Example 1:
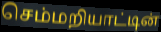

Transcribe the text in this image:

செம்மறியாட்டின்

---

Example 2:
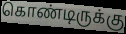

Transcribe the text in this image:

கொண்டிருக்கு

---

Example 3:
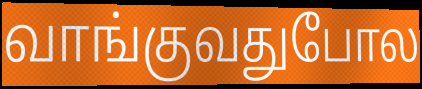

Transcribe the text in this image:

வாங்குவதுபோல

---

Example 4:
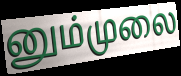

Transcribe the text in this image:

னும்முலை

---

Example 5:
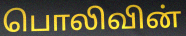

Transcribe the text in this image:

பொலிவின்